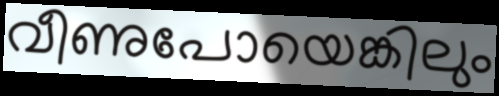
വീണുപോയെങ്കിലും